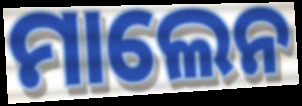
ମାଲେନ